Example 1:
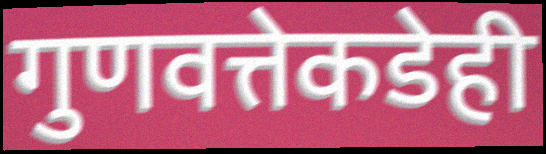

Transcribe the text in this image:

गुणवत्तेकडेही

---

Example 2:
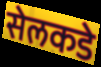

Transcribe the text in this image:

सेलकडे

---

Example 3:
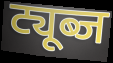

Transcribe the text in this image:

ट्यूब्ज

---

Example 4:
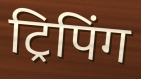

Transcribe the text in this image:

ट्रिपिंग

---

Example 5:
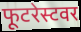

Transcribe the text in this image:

फूटरेस्टवर